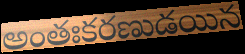
అంతఃకరణుడయిన